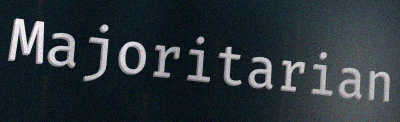
Majoritarian